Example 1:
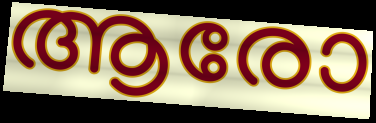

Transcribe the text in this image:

ആരോ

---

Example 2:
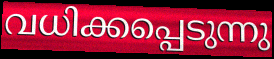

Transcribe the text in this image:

വധിക്കപ്പെടുന്നു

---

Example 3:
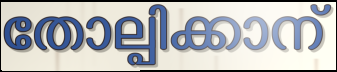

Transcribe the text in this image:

തോല്പിക്കാന്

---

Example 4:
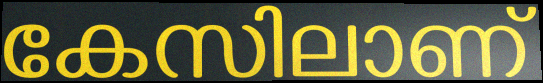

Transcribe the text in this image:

കേസിലാണ്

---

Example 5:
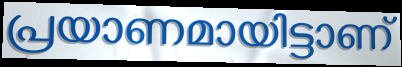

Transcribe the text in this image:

പ്രയാണമായിട്ടാണ്